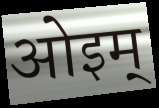
ओइम्